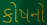
કોષનો